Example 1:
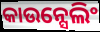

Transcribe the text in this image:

କାଉନ୍ସେଲିଂ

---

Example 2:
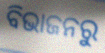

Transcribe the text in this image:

ବିଭାଜନରୁ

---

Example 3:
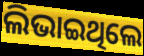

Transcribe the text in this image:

ଲିଭାଇଥିଲେ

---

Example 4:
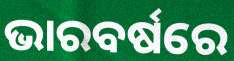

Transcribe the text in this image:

ଭାରବର୍ଷରେ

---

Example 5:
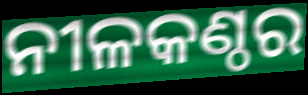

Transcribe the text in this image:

ନୀଳକଣ୍ଠର